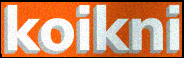
koikni